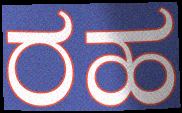
ರಹ